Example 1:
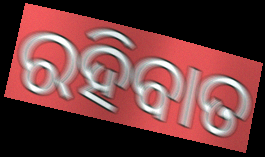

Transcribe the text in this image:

ରହିବାତ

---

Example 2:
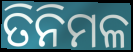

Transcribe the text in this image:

ତିନିମଳ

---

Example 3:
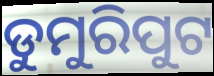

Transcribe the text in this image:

ଡୁମୁରିପୁଟ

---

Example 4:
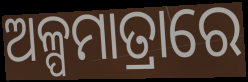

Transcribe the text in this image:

ଅଳ୍ପମାତ୍ରାରେ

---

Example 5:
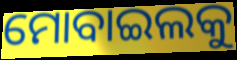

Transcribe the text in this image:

ମୋବାଇଲକୁ